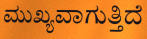
ಮುಖ್ಯವಾಗುತ್ತಿದೆ